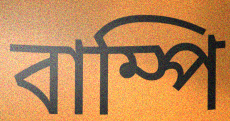
বাম্পি